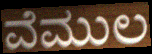
ವೆಮುಲ